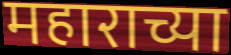
महाराच्या